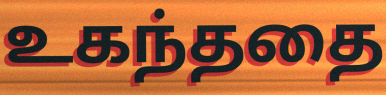
உகந்ததை